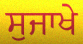
ਸੁਜਾਖੇ